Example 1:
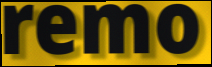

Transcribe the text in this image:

remo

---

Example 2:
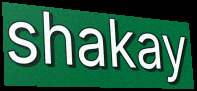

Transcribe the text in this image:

shakay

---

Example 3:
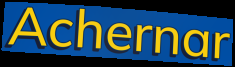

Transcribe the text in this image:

Achernar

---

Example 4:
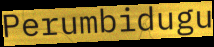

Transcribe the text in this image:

Perumbidugu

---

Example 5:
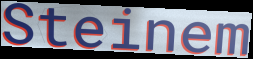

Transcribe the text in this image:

Steinem